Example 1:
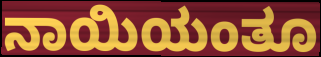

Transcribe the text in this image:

ನಾಯಿಯಂತೂ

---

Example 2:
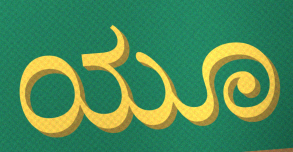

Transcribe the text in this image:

ಯೂ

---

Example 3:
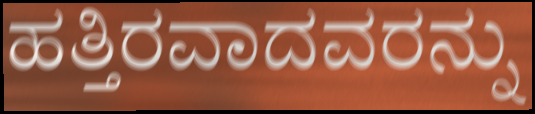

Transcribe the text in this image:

ಹತ್ತಿರವಾದವರನ್ನು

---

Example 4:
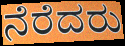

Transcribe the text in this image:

ನೆರೆದರು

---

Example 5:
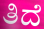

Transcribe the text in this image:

ತಿದೆ